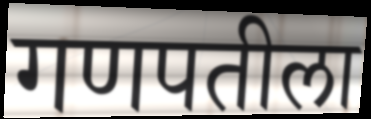
गणपतीला